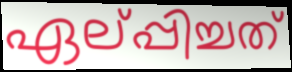
ഏല്പ്പിച്ചത്